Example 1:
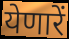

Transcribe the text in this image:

येणारें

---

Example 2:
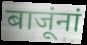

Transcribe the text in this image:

बाजूंनां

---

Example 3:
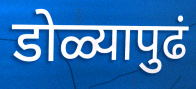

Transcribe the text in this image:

डोळ्यापुढं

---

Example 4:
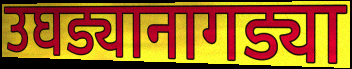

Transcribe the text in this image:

उघड्यानागड्या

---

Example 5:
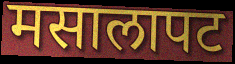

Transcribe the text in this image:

मसालापट